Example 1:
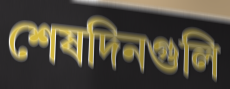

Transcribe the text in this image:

শেষদিনগুলি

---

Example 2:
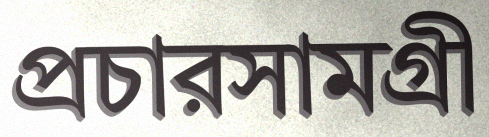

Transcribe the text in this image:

প্রচারসামগ্রী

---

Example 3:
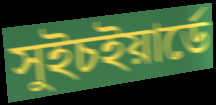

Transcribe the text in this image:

সুইচইয়ার্ডে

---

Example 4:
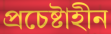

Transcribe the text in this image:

প্রচেষ্টাহীন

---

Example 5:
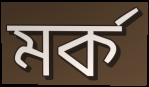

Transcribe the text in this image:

মর্ক